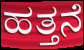
ಹತ್ತನೆ